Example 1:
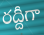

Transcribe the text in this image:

రద్దీగా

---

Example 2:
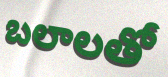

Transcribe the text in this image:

బలాలతో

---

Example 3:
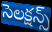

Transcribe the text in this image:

సెలక్షన్స్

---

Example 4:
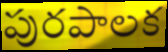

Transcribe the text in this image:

పురపాలక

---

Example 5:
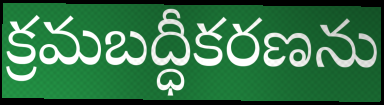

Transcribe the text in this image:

క్రమబద్ధీకరణను